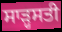
ਸਾੜ੍ਹਸਤੀ